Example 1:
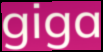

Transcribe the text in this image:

giga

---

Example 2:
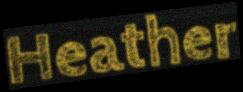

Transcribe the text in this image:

Heather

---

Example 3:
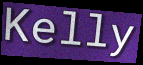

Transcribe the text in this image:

Kelly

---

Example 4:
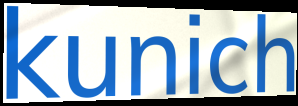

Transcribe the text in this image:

kunich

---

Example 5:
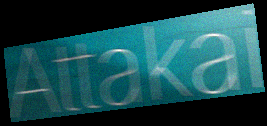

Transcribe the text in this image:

Attakai